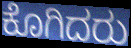
ಕೊಗಿದರು